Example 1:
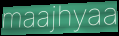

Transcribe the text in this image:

maajhyaa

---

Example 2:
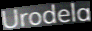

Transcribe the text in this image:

Urodela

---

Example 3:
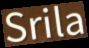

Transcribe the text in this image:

Srila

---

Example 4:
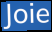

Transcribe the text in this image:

Joie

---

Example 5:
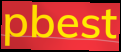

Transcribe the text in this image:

pbest